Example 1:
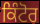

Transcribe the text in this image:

ਕਿੰਟੋਰ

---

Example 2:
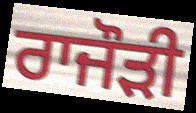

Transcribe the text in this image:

ਰਾਜੌੜੀ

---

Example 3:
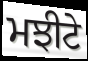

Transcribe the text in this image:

ਮਝੀਟੇ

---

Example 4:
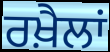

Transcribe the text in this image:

ਰਖ਼ੈਲਾਂ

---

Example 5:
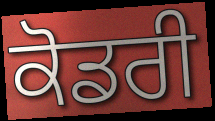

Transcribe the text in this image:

ਕੋਡਰੀ